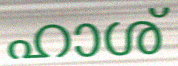
ഹാശ്